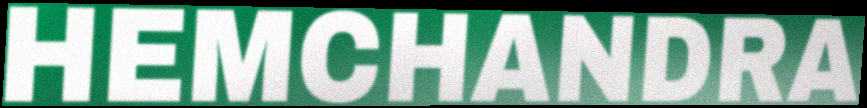
HEMCHANDRA